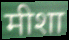
मीशा